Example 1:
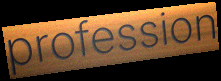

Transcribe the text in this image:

profession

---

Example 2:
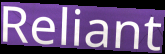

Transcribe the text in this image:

Reliant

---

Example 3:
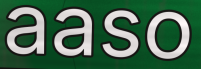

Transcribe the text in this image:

aaso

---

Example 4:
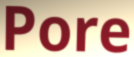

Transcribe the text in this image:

Pore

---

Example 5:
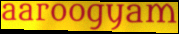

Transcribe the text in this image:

aaroogyam